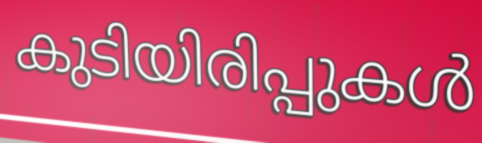
കുടിയിരിപ്പുകൾ